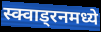
स्क्वाड्रनमध्ये